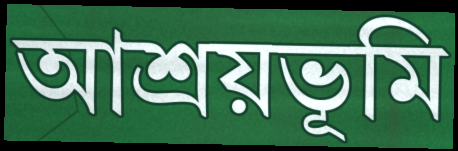
আশ্রয়ভূমি